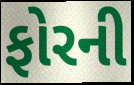
ફોરની